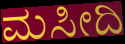
ಮಸೀದಿ